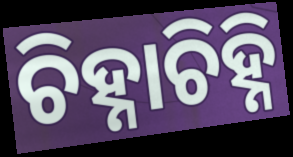
ଚିହ୍ନାଚିହ୍ନି